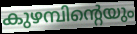
കുഴമ്പിന്റെയും